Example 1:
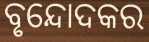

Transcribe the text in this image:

ବୃନ୍ଦୋଦକର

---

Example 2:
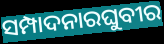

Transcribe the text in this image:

ସମ୍ପାଦନାରଘୁବୀର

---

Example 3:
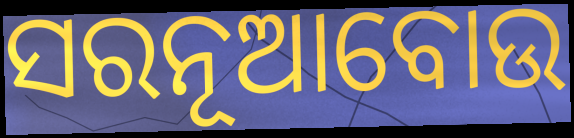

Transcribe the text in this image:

ସରନୂଆବୋଉ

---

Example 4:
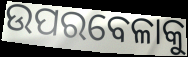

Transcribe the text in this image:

ଉପରବେଳାକୁ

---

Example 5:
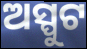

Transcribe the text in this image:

ଅସ୍ପୁଟ